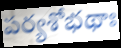
పర్యశోభథాః